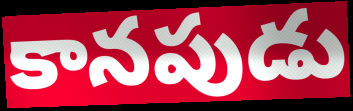
కానపుడు